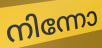
നിന്നോ